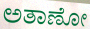
ಅತಾಣೋ